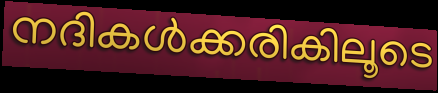
നദികൾക്കരികിലൂടെ